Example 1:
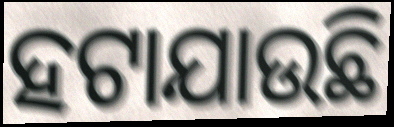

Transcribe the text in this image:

ହଟାଯାଉଛି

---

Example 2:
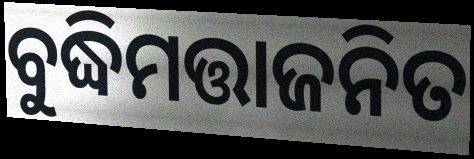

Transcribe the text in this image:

ବୁଦ୍ଧିମତ୍ତାଜନିତ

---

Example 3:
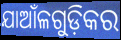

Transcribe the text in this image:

ଯାଆଁଳଗୁଡ଼ିକର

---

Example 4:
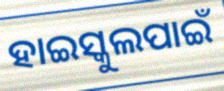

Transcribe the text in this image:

ହାଇସ୍କୁଲପାଇଁ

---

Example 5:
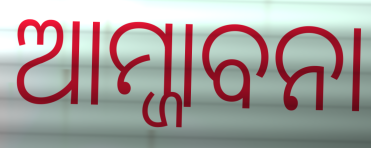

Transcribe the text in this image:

ଆମ୍ଜାବନା